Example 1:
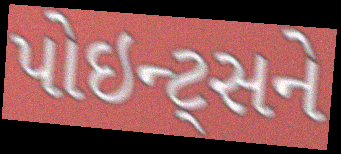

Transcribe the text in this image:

પોઇન્ટ્સને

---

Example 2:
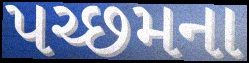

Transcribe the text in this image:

પચ્છમના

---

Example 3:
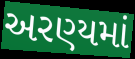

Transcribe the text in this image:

અરણ્યમાં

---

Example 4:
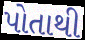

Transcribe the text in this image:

પોતાથી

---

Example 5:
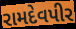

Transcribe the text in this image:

રામદેવપીર